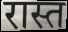
रास्त